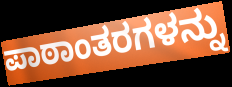
ಪಾಠಾಂತರಗಳನ್ನು